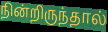
நின்றிருந்தால்